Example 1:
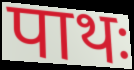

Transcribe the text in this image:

पाथः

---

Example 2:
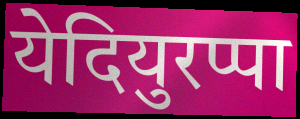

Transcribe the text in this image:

येदियुरप्पा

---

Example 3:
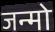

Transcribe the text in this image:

जन्मो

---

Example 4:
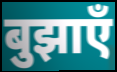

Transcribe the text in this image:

बुझाएँ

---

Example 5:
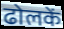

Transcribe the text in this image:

ढोलकें